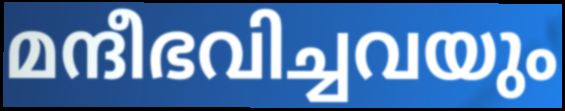
മന്ദീഭവിച്ചവയും